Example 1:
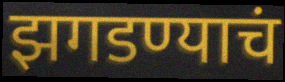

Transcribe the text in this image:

झगडण्याचं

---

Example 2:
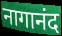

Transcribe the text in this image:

नागानंद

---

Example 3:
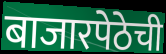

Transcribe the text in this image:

बाजारपेठेची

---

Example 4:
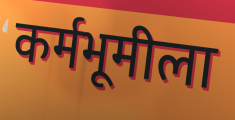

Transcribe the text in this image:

कर्मभूमीला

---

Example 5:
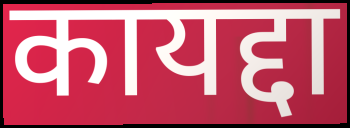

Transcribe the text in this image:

कायद्दा